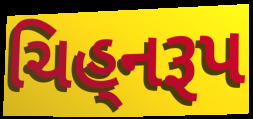
ચિહ્‌નરૂપ